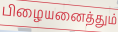
பிழையனைத்தும்